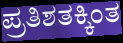
ಪ್ರತಿಶತಕ್ಕಿಂತ